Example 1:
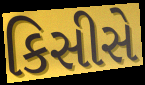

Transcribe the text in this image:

કિસીસે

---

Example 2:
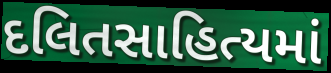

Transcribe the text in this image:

દલિતસાહિત્યમાં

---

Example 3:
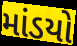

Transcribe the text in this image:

માંડયો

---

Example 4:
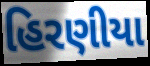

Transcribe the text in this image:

હિરણીયા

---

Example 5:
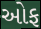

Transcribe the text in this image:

ઓફ